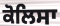
ਕੋਲਿਸਾ